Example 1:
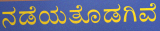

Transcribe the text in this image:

ನಡೆಯತೊಡಗಿವೆ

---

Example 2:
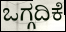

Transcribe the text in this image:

ಒಗ್ಗದಿಕೆ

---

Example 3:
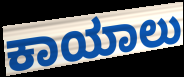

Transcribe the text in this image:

ಕಾಯಾಲು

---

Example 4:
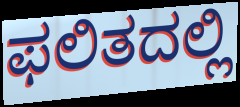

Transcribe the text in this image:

ಫಲಿತದಲ್ಲಿ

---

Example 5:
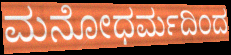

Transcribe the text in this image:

ಮನೋಧರ್ಮದಿಂದ